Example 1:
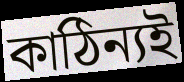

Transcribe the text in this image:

কাঠিন্যই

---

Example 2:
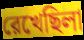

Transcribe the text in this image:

রেখেছিলা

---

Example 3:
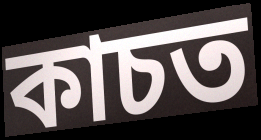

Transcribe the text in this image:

কাচত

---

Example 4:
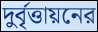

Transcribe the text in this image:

দুর্বৃত্তায়নের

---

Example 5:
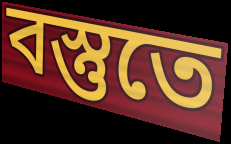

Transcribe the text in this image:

বস্তুতে